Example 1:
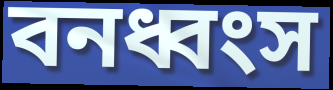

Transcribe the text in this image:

বনধ্বংস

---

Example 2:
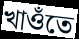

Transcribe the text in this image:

খাওঁতে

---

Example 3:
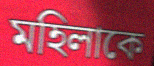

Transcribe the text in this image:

মহিলাকে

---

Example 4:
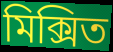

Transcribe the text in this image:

মিক্সিত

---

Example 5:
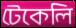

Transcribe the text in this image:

টেকেলি